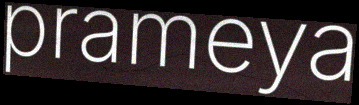
prameya